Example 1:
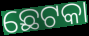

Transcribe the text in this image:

ଛେଟକା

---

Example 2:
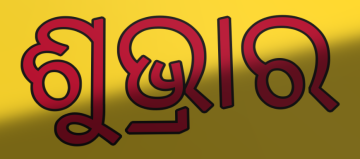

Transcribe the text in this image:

ଶୁଭ୍ରାର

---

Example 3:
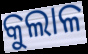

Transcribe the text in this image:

କୁଲାଳ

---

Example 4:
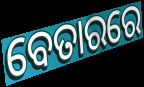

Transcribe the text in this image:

ବେତାରରେ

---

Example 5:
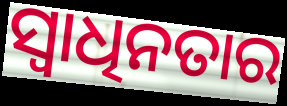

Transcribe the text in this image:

ସ୍ୱାଧିନତାର